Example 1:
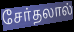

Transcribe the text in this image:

சேர்தலால்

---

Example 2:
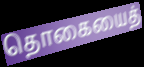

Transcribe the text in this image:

தொகையைத்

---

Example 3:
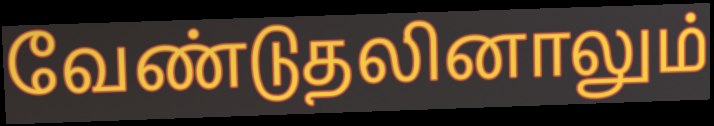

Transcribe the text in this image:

வேண்டுதலினாலும்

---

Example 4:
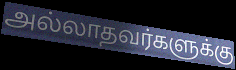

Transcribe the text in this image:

அல்லாதவர்களுக்கு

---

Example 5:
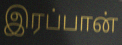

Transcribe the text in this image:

இரப்பான்